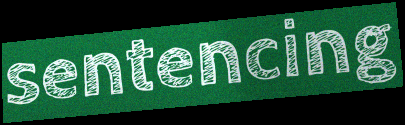
sentencing